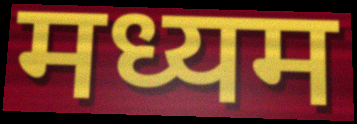
मध्यम